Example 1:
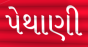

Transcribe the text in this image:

પેથાણી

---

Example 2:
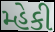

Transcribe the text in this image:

મ્હેકી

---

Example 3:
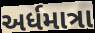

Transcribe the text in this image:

અર્ધમાત્રા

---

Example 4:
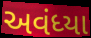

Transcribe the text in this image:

અવંધ્યા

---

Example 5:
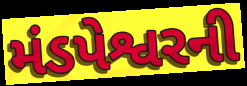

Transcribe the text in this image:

મંડપેશ્વરની